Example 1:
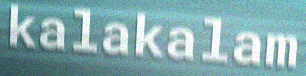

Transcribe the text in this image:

kalakalam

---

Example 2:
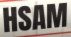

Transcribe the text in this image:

HSAM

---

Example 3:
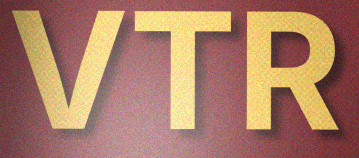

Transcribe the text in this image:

VTR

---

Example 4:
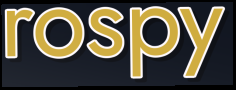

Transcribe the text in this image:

rospy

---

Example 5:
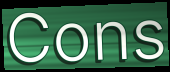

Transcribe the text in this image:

Cons